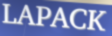
LAPACK